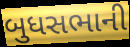
બુધસભાની